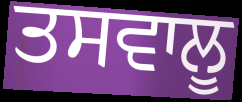
ਤਸਵਾਲੂ